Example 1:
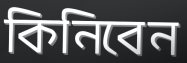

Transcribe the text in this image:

কিনিবেন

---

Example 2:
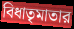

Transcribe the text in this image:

বিধাতৃমাতার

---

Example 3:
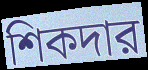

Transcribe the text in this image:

শিকদার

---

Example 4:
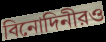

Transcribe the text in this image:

বিনোদিনীরও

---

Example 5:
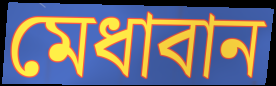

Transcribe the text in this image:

মেধাবান